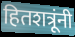
हितशत्रूंनी